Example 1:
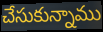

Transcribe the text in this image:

చేసుకున్నాము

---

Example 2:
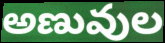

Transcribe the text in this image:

అణువుల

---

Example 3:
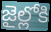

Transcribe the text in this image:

జైల్లోకి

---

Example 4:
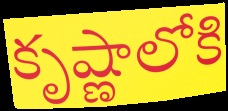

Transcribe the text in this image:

కృష్ణాలోకి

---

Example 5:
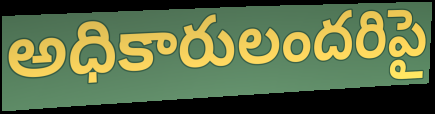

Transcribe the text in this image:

అధికారులందరిపై